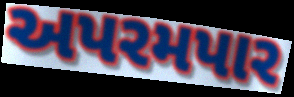
અપરમપાર